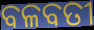
ବଳବତୀ